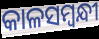
କାଳସମ୍ଵନ୍ଧୀ